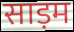
साड़म